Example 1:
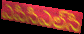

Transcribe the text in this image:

ఎపిసిఎల్‌సి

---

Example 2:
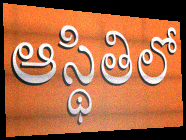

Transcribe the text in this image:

ఆస్థితిలో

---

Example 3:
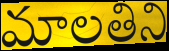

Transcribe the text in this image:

మాలతిని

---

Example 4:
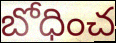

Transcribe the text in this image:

బోధించ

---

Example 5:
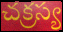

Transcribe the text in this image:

చక్రస్య